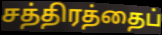
சத்திரத்தைப்